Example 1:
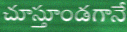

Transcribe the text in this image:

చూస్తూండగానే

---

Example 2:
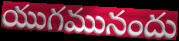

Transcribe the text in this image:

యుగమునందు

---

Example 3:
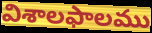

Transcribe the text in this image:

విశాలఫాలము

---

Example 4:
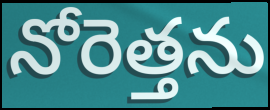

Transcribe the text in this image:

నోరెత్తను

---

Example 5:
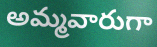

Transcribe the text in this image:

అమ్మవారుగా